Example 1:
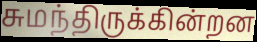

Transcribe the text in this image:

சுமந்திருக்கின்றன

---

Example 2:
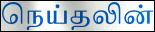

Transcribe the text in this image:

நெய்தலின்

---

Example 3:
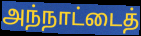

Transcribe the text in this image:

அந்நாட்டைத்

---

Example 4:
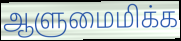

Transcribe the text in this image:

ஆளுமைமிக்க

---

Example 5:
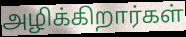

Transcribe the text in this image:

அழிக்கிறார்கள்